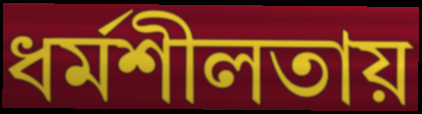
ধর্মশীলতায়